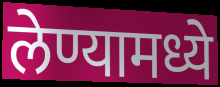
लेण्यामध्ये